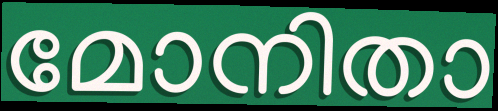
മോനിതാ